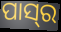
ପାସ୍‍ର